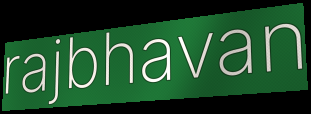
rajbhavan